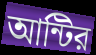
আন্টির